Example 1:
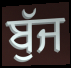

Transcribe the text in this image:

ਬੁੱਜ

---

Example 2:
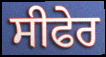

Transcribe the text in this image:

ਸੀਫੇਰ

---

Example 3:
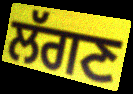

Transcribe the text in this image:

ਲੱਗਣ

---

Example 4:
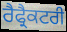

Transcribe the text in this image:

ਰੈਫ੍ਰੈਕਟਰੀ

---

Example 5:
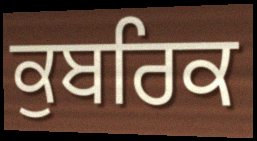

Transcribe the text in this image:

ਕੁਬਰਿਕ